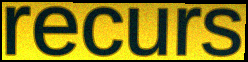
recurs